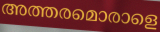
അത്തരമൊരാളെ